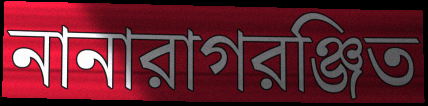
নানারাগরঞ্জিত